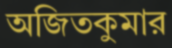
অজিতকুমার